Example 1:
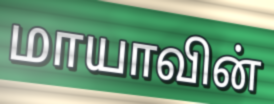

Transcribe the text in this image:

மாயாவின்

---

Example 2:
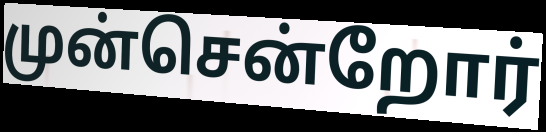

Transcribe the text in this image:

முன்சென்றோர்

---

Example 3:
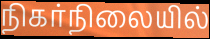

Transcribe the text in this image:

நிகர்நிலையில்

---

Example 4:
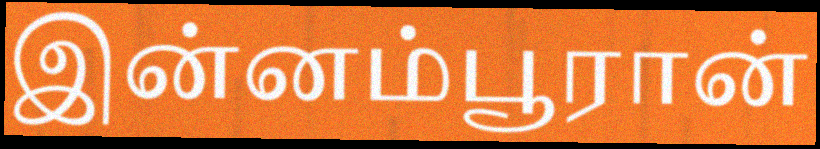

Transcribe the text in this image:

இன்னம்பூரான்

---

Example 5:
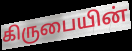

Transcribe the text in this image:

கிருபையின்